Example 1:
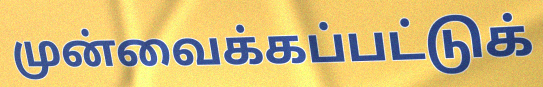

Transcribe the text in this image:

முன்வைக்கப்பட்டுக்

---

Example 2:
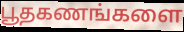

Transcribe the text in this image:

பூதகணங்களை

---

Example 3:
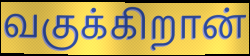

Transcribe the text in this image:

வகுக்கிறான்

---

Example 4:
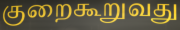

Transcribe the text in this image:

குறைகூறுவது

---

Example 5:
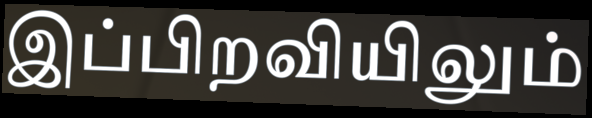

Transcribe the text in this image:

இப்பிறவியிலும்